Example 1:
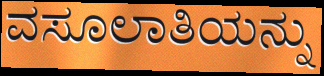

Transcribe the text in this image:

ವಸೂಲಾತಿಯನ್ನು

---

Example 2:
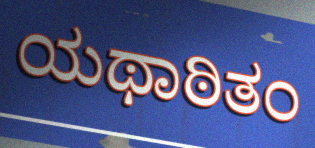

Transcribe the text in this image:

ಯಥಾಠಿತಂ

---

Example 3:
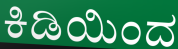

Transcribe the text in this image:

ಕಿಡಿಯಿಂದ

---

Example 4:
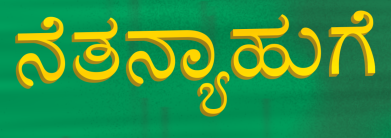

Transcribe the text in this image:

ನೆತನ್ಯಾಹುಗೆ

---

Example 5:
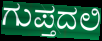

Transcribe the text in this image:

ಗುಪ್ತದಲಿ